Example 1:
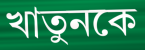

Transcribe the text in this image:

খাতুনকে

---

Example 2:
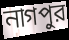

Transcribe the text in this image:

নাগপুর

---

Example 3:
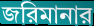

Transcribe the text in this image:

জরিমানার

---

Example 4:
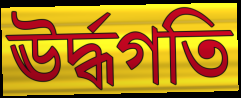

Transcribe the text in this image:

ঊর্দ্ধগতি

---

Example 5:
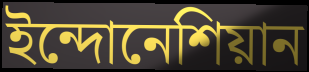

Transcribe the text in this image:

ইন্দোনেশিয়ান